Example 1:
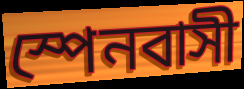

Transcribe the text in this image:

স্পেনবাসী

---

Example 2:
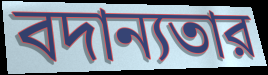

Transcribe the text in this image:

বদান্যতার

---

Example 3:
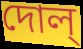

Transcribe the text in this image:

দোল্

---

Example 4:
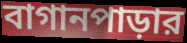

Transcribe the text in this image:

বাগানপাড়ার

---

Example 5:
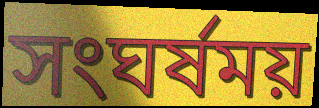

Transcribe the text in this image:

সংঘর্ষময়